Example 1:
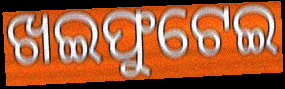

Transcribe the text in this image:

ଖଇଫୁଟେଇ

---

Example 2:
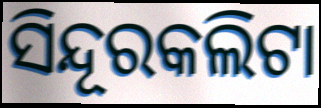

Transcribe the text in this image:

ସିନ୍ଦୂରକଲିଟା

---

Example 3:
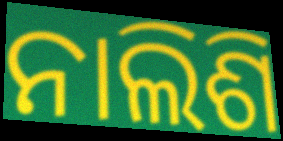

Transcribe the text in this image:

ନାଲିଶି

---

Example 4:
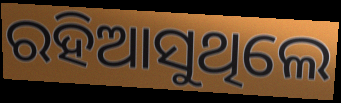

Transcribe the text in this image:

ରହିଆସୁଥିଲେ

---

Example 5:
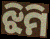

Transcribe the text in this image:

ଝିମି